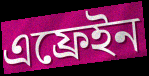
এফ্রেইন